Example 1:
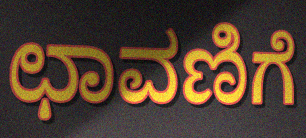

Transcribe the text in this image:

ಛಾವಣಿಗೆ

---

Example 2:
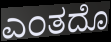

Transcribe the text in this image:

ಎಂತದೊ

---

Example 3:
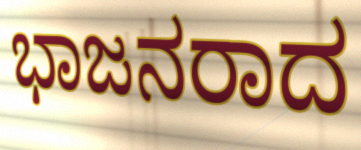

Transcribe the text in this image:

ಭಾಜನರಾದ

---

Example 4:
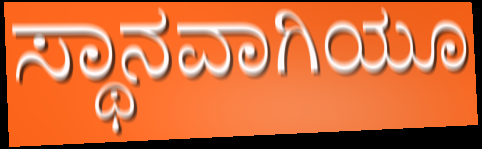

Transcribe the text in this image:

ಸ್ಥಾನವಾಗಿಯೂ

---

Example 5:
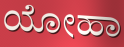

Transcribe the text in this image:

ಯೋಹಾ